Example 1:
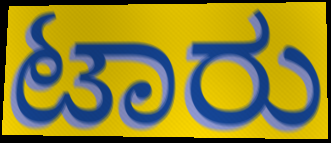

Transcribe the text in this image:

ಟಾರು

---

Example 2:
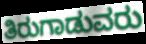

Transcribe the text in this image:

ತಿರುಗಾಡುವರು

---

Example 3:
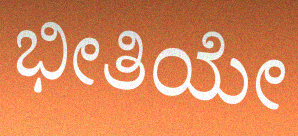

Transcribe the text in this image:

ಭೀತಿಯೇ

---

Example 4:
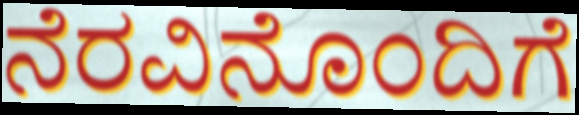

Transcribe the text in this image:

ನೆರವಿನೊಂದಿಗೆ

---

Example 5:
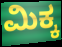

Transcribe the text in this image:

ಮಿಕ್ಕ